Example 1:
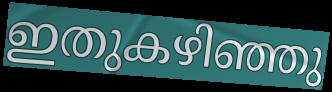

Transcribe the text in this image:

ഇതുകഴിഞ്ഞു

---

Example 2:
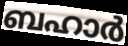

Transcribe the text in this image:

ബഹാർ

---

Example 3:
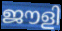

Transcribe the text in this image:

ജൗളി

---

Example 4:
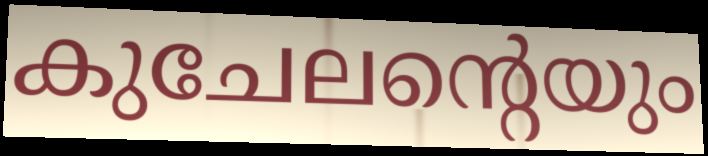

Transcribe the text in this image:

കുചേലന്റെയും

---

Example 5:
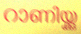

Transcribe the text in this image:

റാണിയ്ക്കു